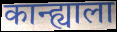
कान्ह्याला